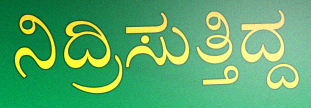
ನಿದ್ರಿಸುತ್ತಿದ್ದ